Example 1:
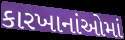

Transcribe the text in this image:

કારખાનાંઓમાં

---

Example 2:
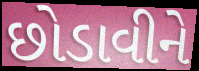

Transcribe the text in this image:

છોડાવીને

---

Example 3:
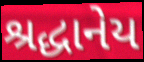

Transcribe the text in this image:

શ્રદ્ધાનેય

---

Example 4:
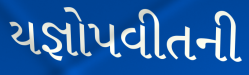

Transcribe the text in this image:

યજ્ઞોપવીતની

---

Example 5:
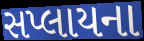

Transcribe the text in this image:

સપ્લાયના